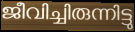
ജീവിച്ചിരുന്നിട്ടു